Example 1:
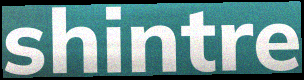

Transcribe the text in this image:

shintre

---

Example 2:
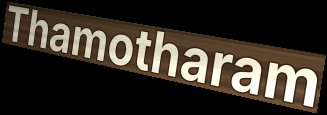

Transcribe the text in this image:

Thamotharam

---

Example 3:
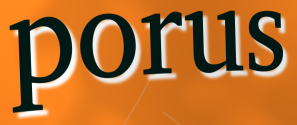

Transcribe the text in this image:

porus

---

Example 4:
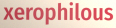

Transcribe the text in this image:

xerophilous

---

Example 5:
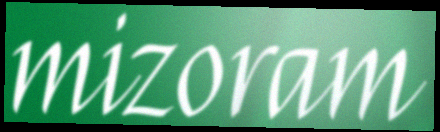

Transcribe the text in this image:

mizoram